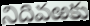
నిదివఱకు